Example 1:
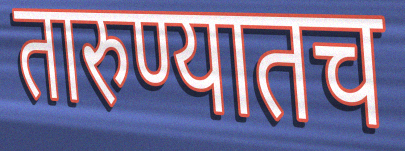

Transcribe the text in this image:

तारुण्यातच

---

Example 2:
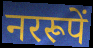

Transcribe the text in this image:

नररूपें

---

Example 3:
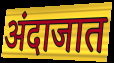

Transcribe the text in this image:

अंदाजात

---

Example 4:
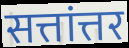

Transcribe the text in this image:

सत्तांत्तर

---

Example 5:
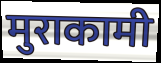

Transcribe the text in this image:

मुराकामी